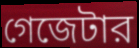
গেজেটার